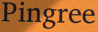
Pingree